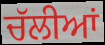
ਚੱਲੀਆਂ